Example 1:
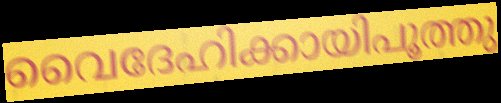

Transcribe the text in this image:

വൈദേഹിക്കായിപൂത്തു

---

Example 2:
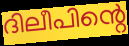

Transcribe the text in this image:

ദിലീപിന്റെ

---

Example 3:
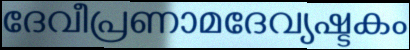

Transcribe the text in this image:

ദേവീപ്രണാമദേവ്യഷ്ടകം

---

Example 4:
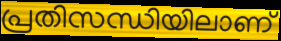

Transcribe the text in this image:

പ്രതിസന്ധിയിലാണ്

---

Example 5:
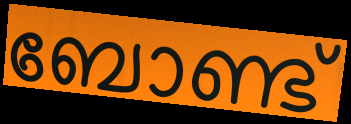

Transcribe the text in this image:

ബോണ്ട്